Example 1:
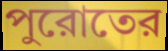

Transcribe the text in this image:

পুরোতের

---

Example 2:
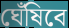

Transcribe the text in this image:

ঘেঁষিবে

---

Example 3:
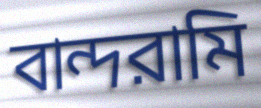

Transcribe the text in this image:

বান্দরামি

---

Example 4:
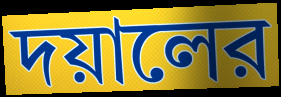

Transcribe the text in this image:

দয়ালের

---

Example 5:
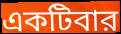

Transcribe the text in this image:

একটিবার